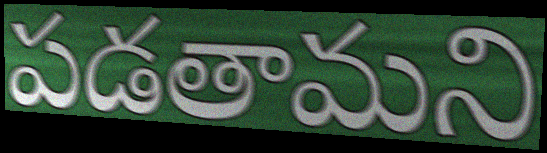
పడతామని